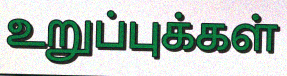
உறுப்புக்கள்